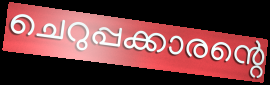
ചെറുപ്പക്കാരന്റെ